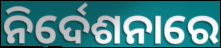
ନିର୍ଦେଶନାରେ